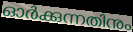
ഓർക്കുന്നതിനും